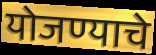
योजण्याचे